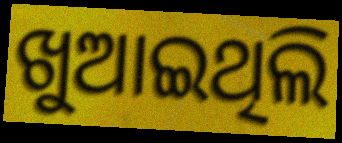
ଖୁଆଇଥିଲି